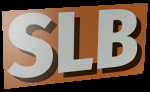
SLB